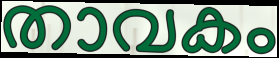
താവകം